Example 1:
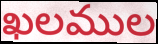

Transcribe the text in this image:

ఖలముల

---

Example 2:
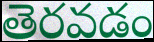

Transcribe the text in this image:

తెరవడం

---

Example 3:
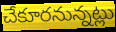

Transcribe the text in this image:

చేకూరనున్నట్లు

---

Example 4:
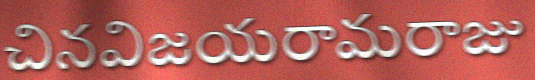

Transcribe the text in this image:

చినవిజయరామరాజు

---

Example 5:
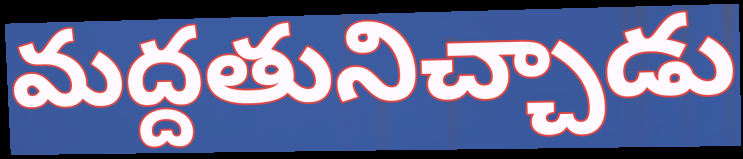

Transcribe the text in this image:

మద్దతునిచ్చాడు